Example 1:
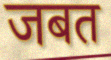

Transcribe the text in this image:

जबत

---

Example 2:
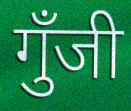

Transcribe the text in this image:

गुँजी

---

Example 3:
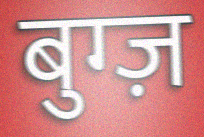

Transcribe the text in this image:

बुग्ज़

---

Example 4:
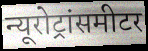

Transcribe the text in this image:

न्यूरोट्रांसमीटर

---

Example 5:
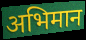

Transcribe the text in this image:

अभिमान